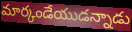
మార్కండేయుడన్నాడు